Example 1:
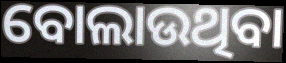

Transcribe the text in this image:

ବୋଲାଉଥିବା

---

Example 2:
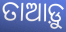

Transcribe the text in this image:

ତାଆଡ଼ୁ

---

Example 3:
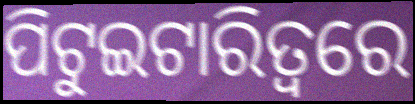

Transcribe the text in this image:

ପିଟୁଇଟାରିତ୍ୱରେ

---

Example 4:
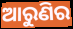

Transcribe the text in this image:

ଆରୁଣିର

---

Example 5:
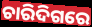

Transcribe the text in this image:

ଚାରିଦିଗରେ